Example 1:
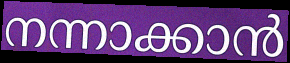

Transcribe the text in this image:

നന്നാക്കാൻ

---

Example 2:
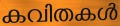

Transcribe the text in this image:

കവിതകൾ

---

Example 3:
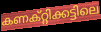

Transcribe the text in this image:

കണക്റ്റിക്കട്ടിലെ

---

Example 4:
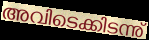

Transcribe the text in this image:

അവിടെക്കിടന്നു്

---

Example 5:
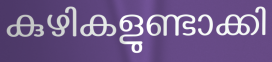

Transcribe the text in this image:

കുഴികളുണ്ടാക്കി